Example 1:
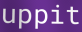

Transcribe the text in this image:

uppit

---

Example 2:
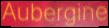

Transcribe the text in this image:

Aubergine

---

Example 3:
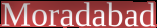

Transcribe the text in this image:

Moradabad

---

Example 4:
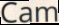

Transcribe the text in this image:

Cam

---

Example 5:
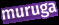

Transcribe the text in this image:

muruga